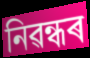
নিৱন্ধৰ